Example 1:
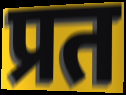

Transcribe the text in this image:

प्रत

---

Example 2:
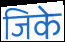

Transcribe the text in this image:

जिके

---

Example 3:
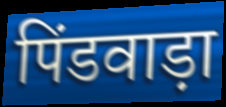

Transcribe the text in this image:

पिंडवाड़ा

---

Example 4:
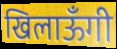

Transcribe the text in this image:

खिलाऊँगी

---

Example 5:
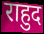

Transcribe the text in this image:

राहुद